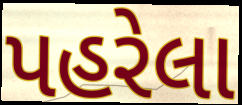
પહરેલા